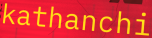
kathanchi